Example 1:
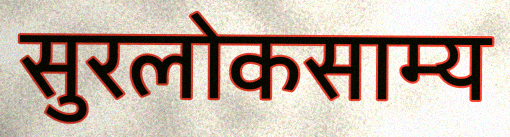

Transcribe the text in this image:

सुरलोकसाम्य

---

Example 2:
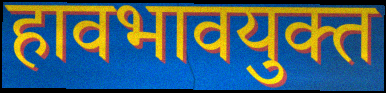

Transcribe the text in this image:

हावभावयुक्त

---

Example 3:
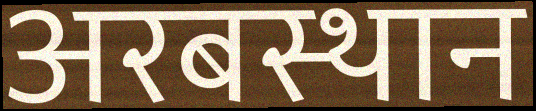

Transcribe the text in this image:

अरबस्थान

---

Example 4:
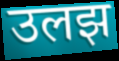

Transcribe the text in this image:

उलझ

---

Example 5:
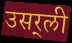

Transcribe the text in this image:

उसर्ली